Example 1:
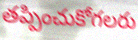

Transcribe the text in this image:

తప్పించుకోగలరు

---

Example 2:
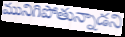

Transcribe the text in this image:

మునిగిపోతున్నాడని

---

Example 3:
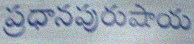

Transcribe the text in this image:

ప్రధానపురుషాయ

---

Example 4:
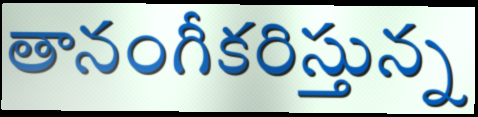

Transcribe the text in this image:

తానంగీకరిస్తున్న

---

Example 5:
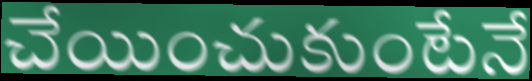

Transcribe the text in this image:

చేయించుకుంటేనే